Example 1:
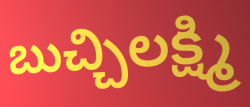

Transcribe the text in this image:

బుచ్చిలక్ష్మి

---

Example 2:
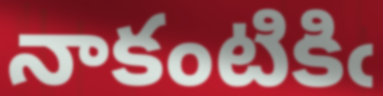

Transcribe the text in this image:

నాకంటికిఁ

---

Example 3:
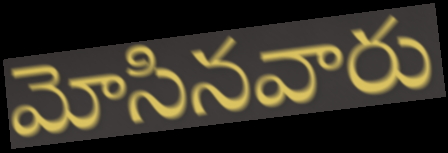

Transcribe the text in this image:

మోసినవారు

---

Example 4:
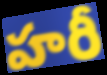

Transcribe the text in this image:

హరీ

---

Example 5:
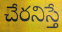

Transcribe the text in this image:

చేరనిస్తే